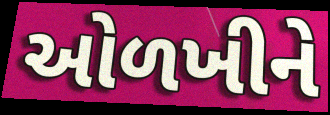
ઓળખીને